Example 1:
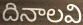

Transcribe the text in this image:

దినాలవి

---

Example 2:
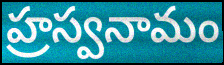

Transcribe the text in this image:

హ్రస్వనామం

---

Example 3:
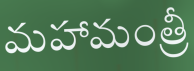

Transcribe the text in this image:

మహామంత్రీ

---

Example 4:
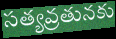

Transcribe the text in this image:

సత్యవ్రతునకు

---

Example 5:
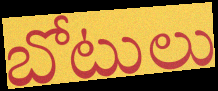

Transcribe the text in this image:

బోటులు